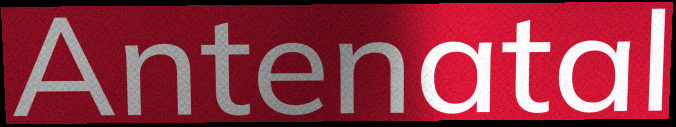
Antenatal